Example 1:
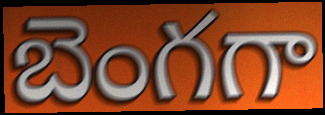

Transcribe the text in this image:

బెంగగా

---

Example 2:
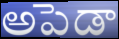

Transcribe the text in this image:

అపెడా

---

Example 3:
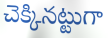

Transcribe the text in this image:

చెక్కినట్టుగా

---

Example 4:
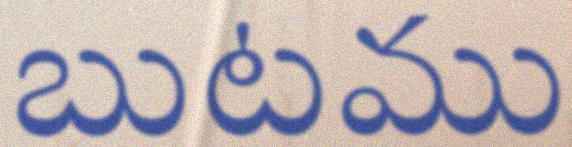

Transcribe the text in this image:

బుటము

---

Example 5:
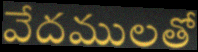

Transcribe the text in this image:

వేదములతో